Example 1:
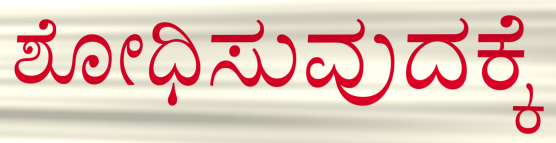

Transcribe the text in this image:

ಶೋಧಿಸುವುದಕ್ಕೆ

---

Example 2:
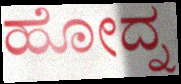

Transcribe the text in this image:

ಹೋದ್ನ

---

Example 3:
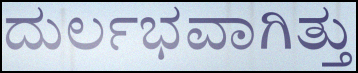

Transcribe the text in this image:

ದುರ್ಲಭವಾಗಿತ್ತು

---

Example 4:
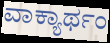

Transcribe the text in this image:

ವಾಕ್ಯಾರ್ಥಂ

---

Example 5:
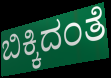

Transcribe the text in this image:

ಬಿಕ್ಕಿದಂತೆ